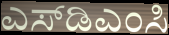
ಎಸ್‌ಡಿಎಂಸಿ